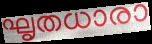
ഘൃതധാരാ